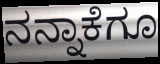
ನನ್ನಾಕೆಗೂ